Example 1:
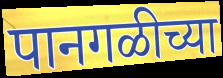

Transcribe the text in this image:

पानगळीच्या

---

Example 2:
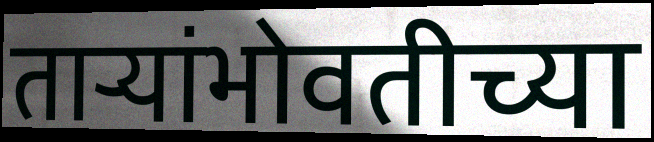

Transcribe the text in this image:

ताऱ्यांभोवतीच्या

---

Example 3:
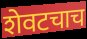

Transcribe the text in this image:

शेवटचाच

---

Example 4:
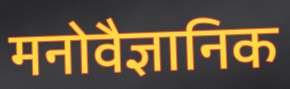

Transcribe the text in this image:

मनोवैज्ञानिक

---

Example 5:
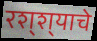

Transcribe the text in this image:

रश्श्याचे